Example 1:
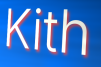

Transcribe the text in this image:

Kith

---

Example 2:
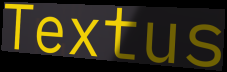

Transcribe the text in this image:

Textus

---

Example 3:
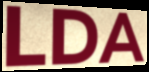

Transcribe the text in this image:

LDA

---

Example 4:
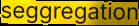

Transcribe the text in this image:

seggregation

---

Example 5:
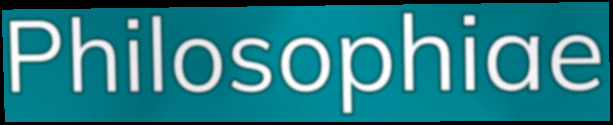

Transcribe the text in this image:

Philosophiae